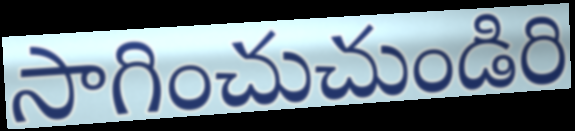
సాగించుచుండిరి